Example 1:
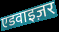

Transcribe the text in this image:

एडवाइज़र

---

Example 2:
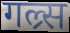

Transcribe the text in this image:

गल्र्स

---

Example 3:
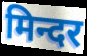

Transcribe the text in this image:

मिन्दर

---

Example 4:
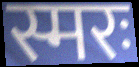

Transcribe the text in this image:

स्मरः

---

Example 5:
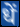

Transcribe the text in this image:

धें